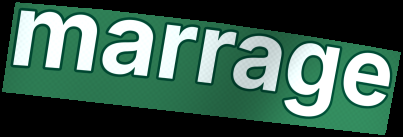
marrage